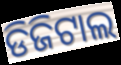
ଡିଜିଟାଲ